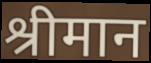
श्रीमान